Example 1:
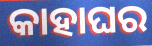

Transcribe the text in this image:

କାହାଘର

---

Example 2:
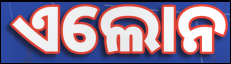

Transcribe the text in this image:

ଏଲୋନ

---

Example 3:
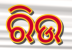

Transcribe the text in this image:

ରିଉ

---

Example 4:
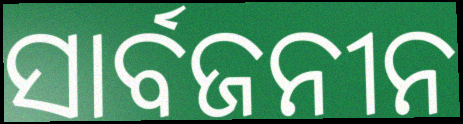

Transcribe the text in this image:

ସାର୍ବଜନୀନ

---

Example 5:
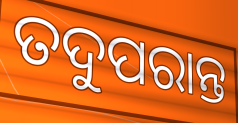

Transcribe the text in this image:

ତଦୁପରାନ୍ତ